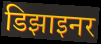
डिझाइनर